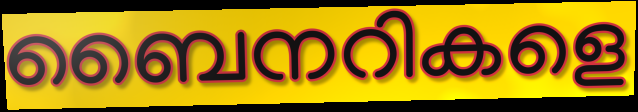
ബൈനറികളെ